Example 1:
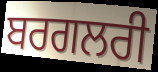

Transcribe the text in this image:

ਬਰਗਲਰੀ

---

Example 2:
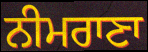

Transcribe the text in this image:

ਨੀਮਰਾਣਾ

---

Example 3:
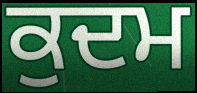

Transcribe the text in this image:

ਕੁਦਮ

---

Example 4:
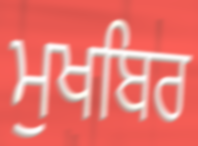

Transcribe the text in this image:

ਮੁਖਬਿਰ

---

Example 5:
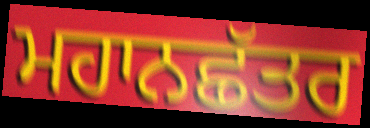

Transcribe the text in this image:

ਮਹਾਨਛੱਤਰ